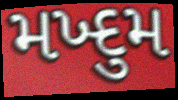
મખ્દુમ